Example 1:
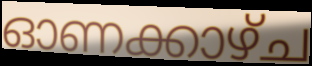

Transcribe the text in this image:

ഓണക്കാഴ്ച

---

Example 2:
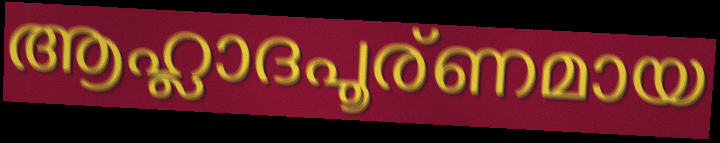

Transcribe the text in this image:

ആഹ്ലാദപൂര്ണമായ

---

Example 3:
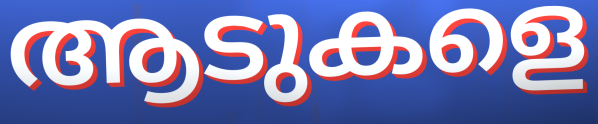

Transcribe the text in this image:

ആടുകളെ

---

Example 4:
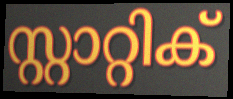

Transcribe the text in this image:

സ്റ്റാറ്റിക്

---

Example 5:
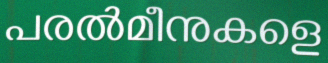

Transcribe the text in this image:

പരൽമീനുകളെ